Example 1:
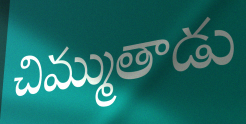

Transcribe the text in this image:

చిమ్ముతాడు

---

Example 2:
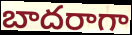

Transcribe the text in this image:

బాదరాగా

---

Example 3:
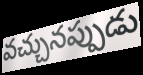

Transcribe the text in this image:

వచ్చునప్పుడు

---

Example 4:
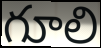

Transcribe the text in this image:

గూలి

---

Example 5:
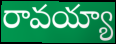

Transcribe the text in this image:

రావయ్యా